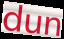
dun